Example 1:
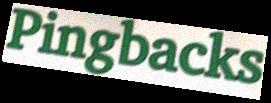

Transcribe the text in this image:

Pingbacks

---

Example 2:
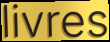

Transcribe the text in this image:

livres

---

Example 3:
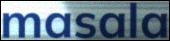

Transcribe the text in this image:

masala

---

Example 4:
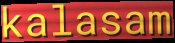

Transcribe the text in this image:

kalasam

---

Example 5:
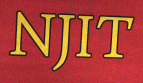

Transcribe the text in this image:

NJIT